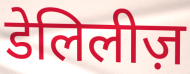
डेलिलीज़